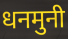
धनमुनी